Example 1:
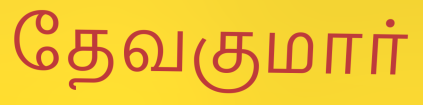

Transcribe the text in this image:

தேவகுமார்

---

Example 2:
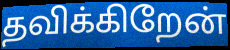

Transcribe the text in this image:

தவிக்கிறேன்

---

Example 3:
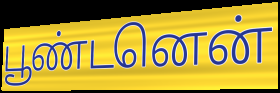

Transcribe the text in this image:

பூண்டனென்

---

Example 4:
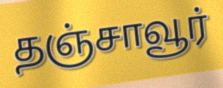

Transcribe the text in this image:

தஞ்சாவூர்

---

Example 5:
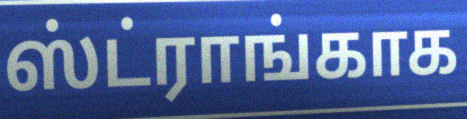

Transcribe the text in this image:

ஸ்ட்ராங்காக